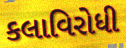
કલાવિરોધી